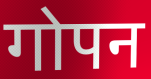
गोपन